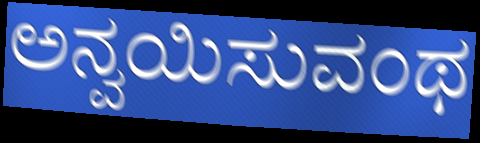
ಅನ್ವಯಿಸುವಂಥ